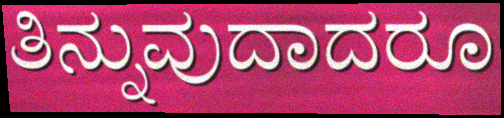
ತಿನ್ನುವುದಾದರೂ